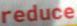
reduce